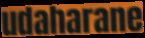
udaharane